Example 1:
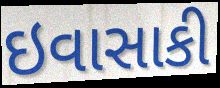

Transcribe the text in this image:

ઇવાસાકી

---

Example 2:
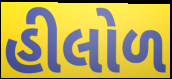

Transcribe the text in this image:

હીલોળ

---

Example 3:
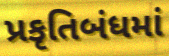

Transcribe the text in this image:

પ્રકૃતિબંધમાં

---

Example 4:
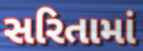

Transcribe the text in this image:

સરિતામાં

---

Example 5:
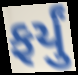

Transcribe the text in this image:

ફર્યું